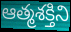
ఆత్మశక్తిని